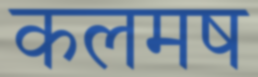
कलमष